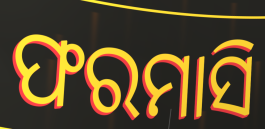
ଫରମାସି